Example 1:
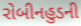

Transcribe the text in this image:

રોબીનહુડની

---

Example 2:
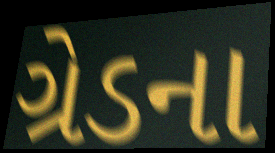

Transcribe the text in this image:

ગ્રેડના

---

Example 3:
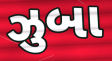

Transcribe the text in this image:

ઝુબા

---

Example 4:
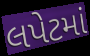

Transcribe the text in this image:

લપેટમાં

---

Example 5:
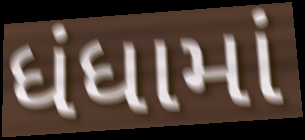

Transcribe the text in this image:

ધંધામાં